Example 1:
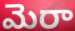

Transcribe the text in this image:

మెరా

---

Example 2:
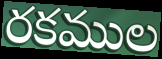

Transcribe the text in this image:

రకముల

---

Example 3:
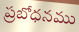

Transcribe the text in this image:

ప్రబోధనము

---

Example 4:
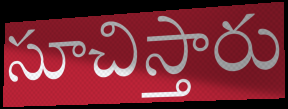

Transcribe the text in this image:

సూచిస్తారు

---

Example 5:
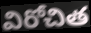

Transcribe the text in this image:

విరోచిత